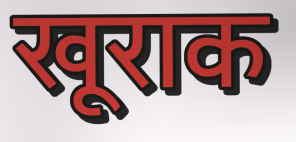
खूराक